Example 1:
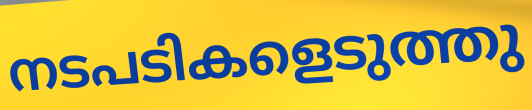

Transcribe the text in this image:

നടപടികളെടുത്തു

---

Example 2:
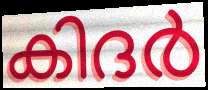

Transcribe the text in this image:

കിദർ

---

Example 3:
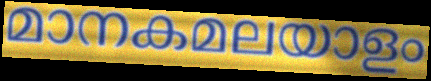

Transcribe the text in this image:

മാനകമലയാളം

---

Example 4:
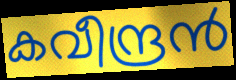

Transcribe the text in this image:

കവീന്ദ്രൻ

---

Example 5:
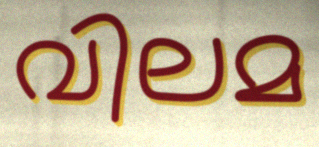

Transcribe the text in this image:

വിലമ